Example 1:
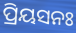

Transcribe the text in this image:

ପ୍ରିୟସନଃ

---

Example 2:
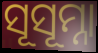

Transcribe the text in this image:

ସୂସୂମ୍ନା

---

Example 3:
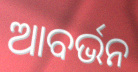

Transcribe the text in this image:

ଆବର୍ଭନ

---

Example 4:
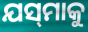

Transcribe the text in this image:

ଯସ୍‌ମାକୁ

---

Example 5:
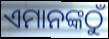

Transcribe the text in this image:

ଏମାନଙ୍କଠୁଁ